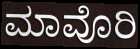
ಮಾವೊರಿ